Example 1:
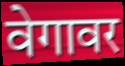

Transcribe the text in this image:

वेगावर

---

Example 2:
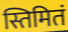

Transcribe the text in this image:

स्तिमितं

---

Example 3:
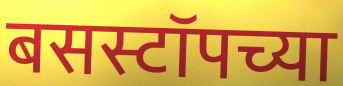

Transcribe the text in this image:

बसस्टॉपच्या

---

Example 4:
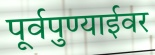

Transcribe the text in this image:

पूर्वपुण्याईवर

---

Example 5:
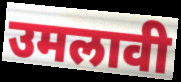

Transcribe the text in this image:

उमलावी